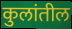
कुलांतील